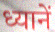
ध्यानें